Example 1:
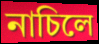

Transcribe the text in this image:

নাচিলে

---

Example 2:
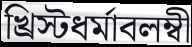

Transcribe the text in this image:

খ্রিস্টধর্মাবলম্বী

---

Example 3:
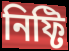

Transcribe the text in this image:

নিফ্টি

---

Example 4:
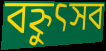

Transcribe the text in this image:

বহ্নুৎসব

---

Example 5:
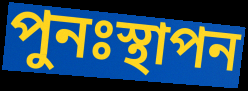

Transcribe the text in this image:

পুনঃস্থাপন